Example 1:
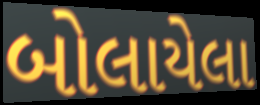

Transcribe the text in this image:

બોલાયેલા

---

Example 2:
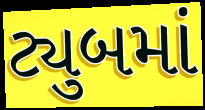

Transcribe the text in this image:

ટ્યુબમાં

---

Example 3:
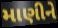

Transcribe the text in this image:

માણીને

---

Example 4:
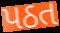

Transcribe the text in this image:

પઠત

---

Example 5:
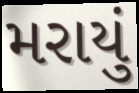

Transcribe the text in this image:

મરાયું